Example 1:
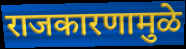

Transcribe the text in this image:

राजकारणामुळे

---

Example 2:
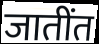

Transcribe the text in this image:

जातींत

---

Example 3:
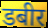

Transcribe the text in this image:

डबीर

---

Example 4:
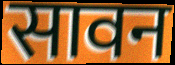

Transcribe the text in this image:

सावन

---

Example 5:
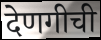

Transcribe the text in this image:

देणगीची